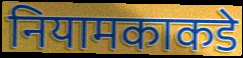
नियामकाकडे